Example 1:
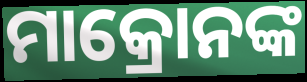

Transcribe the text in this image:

ମାକ୍ରୋନଙ୍କ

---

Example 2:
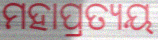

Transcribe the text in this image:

ମହାପ୍ରତ୍ୟୟ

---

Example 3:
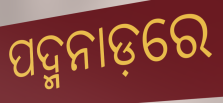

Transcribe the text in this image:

ପଦ୍ମନାଡ଼ରେ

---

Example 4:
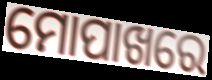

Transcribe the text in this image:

ମୋପାଖରେ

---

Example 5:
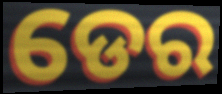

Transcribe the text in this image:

ଡେର